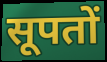
सूपतों